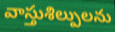
వాస్తుశిల్పులను